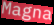
Magna